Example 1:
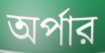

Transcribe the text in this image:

অর্পার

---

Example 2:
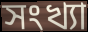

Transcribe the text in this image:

সংখ্যা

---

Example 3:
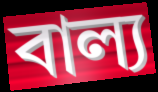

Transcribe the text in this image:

বাল্য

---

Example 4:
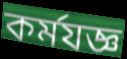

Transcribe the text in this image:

কর্মযজ্ঞ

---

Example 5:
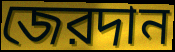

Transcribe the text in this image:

জেরদান